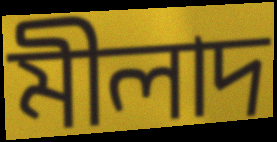
মীলাদ